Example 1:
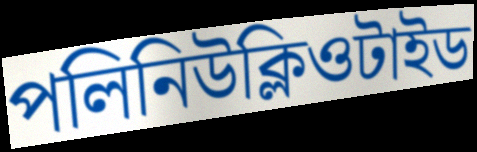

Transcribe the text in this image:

পলিনিউক্লিওটাইড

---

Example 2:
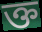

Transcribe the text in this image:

ক্ত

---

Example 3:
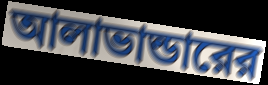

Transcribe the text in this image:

আলাভান্ডারের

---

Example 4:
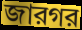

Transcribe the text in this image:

জারগর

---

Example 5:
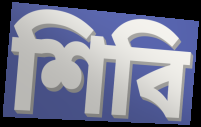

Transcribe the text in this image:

শিবি